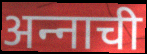
अन्नाची